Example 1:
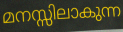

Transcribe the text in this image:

മനസ്സിലാകുന്ന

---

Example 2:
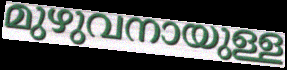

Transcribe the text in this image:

മുഴുവനായുള്ള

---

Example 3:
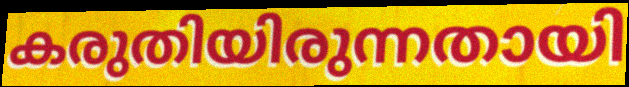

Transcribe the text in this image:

കരുതിയിരുന്നതായി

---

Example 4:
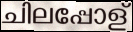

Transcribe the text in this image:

ചിലപ്പോള്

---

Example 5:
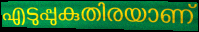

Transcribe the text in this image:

എടുപ്പുകുതിരയാണ്